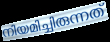
നിയമിച്ചിരുന്നത്